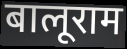
बालूराम